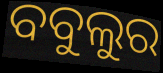
ବବୁଲୁର